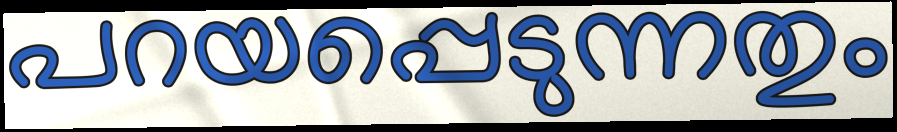
പറയപ്പെടുന്നതും